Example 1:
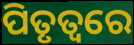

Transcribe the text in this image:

ପିତୃତ୍ୱରେ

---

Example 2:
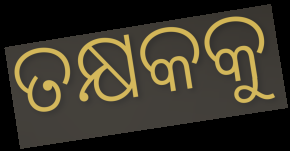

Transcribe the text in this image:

ତକ୍ଷକକୁ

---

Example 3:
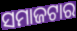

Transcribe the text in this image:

ସମାଜଟାର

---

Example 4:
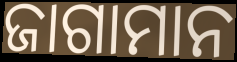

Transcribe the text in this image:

ଜାଗାମାନ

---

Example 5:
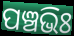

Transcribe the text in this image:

ପଞ୍ଚଭିଃ